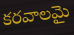
కరవాలమై